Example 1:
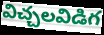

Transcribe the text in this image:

విచ్చలవిడిగ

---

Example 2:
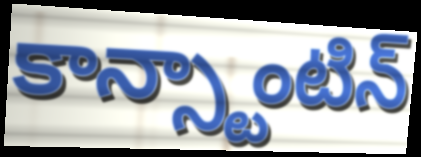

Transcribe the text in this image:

కాన్స్టాంటిన్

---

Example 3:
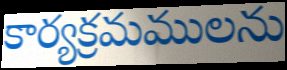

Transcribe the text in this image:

కార్యక్రమములను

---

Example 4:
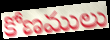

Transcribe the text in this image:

కోణములు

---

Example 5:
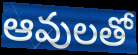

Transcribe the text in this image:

ఆవులతో